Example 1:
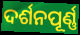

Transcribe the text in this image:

ଦର୍ଶନପୂର୍ଣ୍ଣ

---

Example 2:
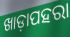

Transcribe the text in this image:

ଖାଡ଼ାପହରା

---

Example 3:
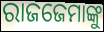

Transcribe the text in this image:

ରାଜଜେମାଙ୍କୁ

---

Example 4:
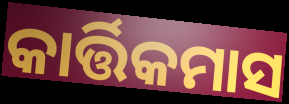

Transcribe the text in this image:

କାର୍ତ୍ତିକମାସ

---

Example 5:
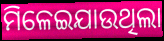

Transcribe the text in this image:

ମିଳେଇଯାଉଥିଲା